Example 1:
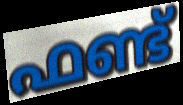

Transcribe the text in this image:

ഫണ്ട്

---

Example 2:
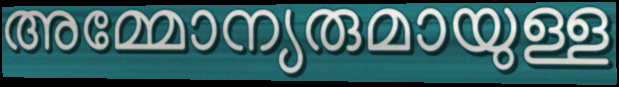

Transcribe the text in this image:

അമ്മോന്യരുമായുള്ള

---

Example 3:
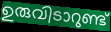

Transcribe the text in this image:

ഉരുവിടാറുണ്ട്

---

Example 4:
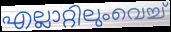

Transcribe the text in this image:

എല്ലാറ്റിലുംവെച്ച്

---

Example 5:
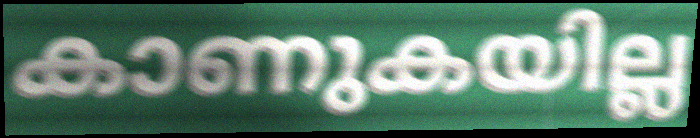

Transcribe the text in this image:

കാണുകയില്ല